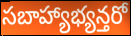
సబాహ్యాభ్యన్తరో